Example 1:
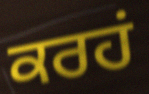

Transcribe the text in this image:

ਕਰਹਂ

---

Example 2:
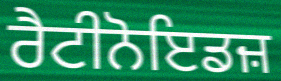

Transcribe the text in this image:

ਰੈਟੀਨੋਇਡਜ਼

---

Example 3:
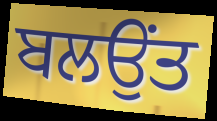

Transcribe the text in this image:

ਬਲਉਂਤ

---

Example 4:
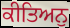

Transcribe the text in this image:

ਕੀਤਿਅਨੁ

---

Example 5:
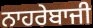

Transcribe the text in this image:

ਨਾਹਰੇਬਾਜੀ